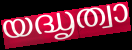
യദ്ധൃത്വാ